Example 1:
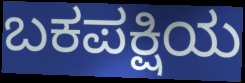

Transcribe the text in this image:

ಬಕಪಕ್ಷಿಯ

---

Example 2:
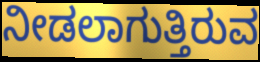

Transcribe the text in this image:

ನೀಡಲಾಗುತ್ತಿರುವ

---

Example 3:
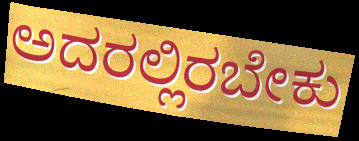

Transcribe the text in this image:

ಅದರಲ್ಲಿರಬೇಕು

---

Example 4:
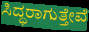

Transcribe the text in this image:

ಸಿದ್ಧರಾಗುತ್ತೇವೆ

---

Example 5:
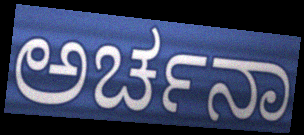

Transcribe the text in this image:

ಅರ್ಚನಾ